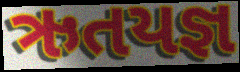
ઋતયજ્ઞ